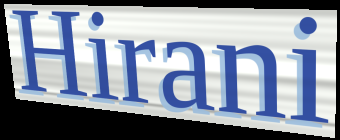
Hirani